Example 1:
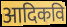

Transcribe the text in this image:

आदिकवि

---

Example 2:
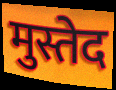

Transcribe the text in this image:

मुस्तेद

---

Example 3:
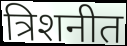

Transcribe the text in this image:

त्रिशनीत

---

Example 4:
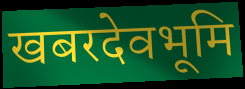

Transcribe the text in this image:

खबरदेवभूमि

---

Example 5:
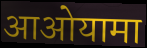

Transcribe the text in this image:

आओयामा